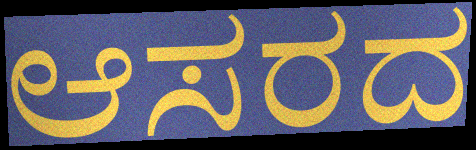
ಆಸರದ